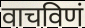
वाचविणं